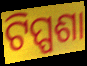
ଟିପ୍ପଶା